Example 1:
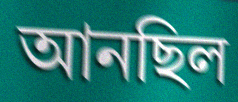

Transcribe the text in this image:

আনছিল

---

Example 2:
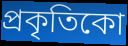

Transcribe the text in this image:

প্ৰকৃতিকো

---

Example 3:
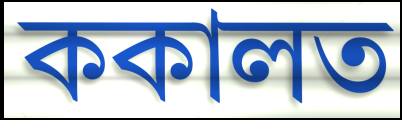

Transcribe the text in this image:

ককালত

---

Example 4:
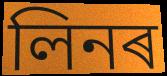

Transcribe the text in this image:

লিনৰ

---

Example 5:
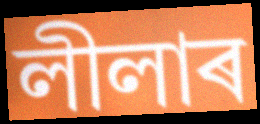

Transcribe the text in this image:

লীলাৰ